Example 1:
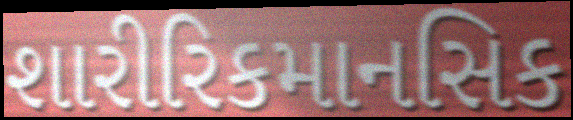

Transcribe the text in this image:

શારીરિકમાનસિક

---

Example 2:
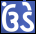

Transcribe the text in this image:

ઉંડે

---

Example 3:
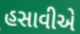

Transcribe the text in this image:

હસાવીએ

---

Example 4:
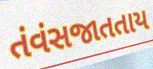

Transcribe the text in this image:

તંવંસજાતતાય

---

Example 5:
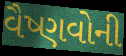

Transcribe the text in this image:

વૈષ્ણવોની